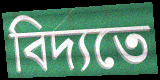
বিদ্যতে